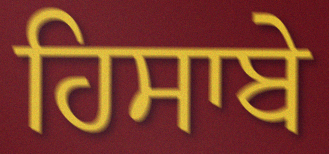
ਹਿਸਾਬੇ